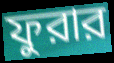
ফুরার